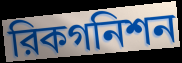
রিকগনিশন